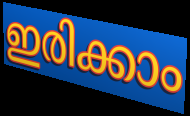
ഇരിക്കാം